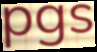
pgs